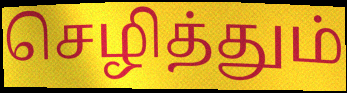
செழித்தும்